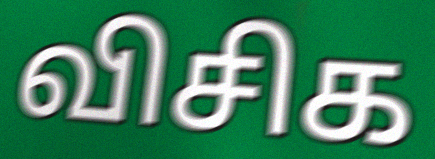
விசிக